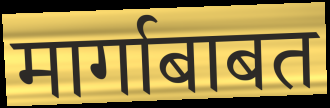
मार्गाबाबत